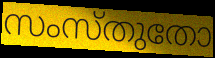
സംസ്തുതോ